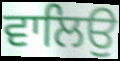
ਵਾਲਿਉ